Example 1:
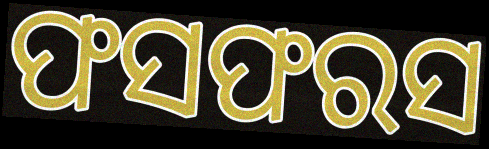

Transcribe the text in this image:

ଫସଫରସ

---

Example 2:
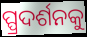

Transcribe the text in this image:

ପ୍ପ୍ରଦର୍ଶନକୁ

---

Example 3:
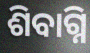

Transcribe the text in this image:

ଶିବାଗ୍ନି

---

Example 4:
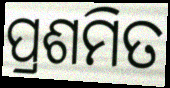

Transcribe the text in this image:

ପ୍ରଶମିତ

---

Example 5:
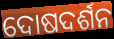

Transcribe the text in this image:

ଦୋଷଦର୍ଶନ